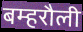
बम्हरौली